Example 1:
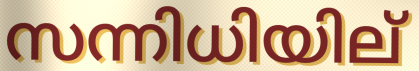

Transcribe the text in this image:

സന്നിധിയില്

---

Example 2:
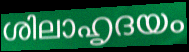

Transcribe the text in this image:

ശിലാഹൃദയം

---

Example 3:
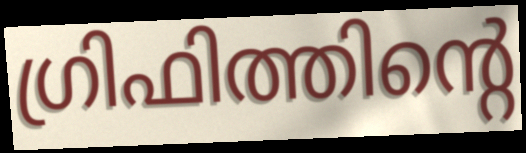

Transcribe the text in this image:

ഗ്രിഫിത്തിന്റെ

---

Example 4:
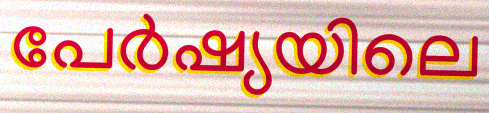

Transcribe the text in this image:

പേർഷ്യയിലെ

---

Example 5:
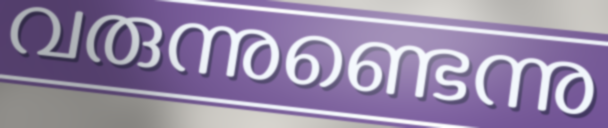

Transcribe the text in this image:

വരുന്നുണ്ടെന്നു